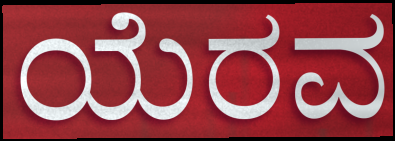
ಯೆರವ